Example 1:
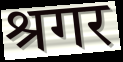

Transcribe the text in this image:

श्रगर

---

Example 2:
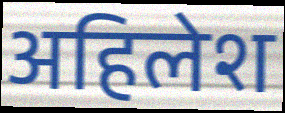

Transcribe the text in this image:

अहिलेश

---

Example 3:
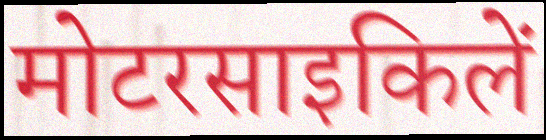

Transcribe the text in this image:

मोटरसाइकिलें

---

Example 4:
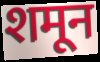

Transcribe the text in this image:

शमून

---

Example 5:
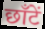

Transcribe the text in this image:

छाँटें